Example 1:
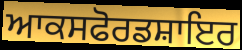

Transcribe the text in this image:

ਆਕਸਫੋਰਡਸ਼ਾਇਰ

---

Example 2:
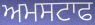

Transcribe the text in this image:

ਅਮਸਟਾਫ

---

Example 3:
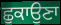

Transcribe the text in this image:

ਛੁਕਾਉਣਾ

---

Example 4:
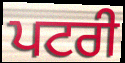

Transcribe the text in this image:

ਪਟਰੀ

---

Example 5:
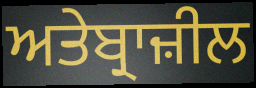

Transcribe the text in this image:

ਅਤੇਬ੍ਰਾਜ਼ੀਲ